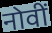
नोवीं